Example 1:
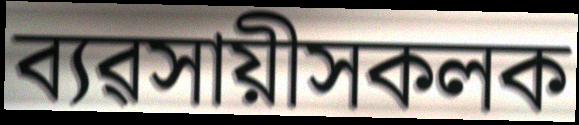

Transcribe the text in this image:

ব্যৱসায়ীসকলক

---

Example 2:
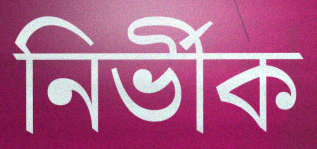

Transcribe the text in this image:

নিৰ্ভীক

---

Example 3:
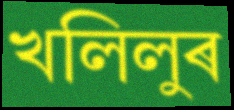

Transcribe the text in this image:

খলিলুৰ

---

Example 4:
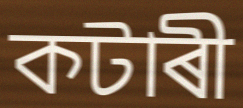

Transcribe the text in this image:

কটাৰী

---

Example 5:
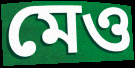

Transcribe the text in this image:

মেও